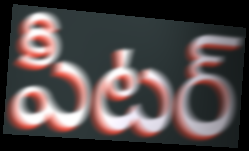
పీటర్